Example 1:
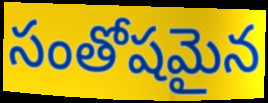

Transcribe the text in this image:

సంతోషమైన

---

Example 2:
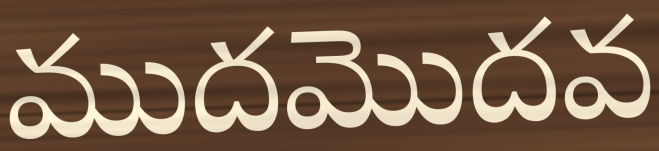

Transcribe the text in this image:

ముదమొదవ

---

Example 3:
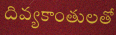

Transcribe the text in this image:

దివ్యకాంతులతో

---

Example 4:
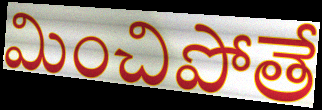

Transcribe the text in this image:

మించిపోతే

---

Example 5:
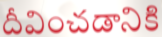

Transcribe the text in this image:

దీవించడానికి